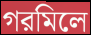
গরমিলে